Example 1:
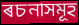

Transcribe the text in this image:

ৰচনাসমূহ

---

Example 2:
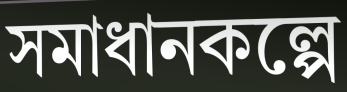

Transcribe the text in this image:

সমাধানকল্পে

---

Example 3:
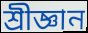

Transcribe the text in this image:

শ্ৰীজ্ঞান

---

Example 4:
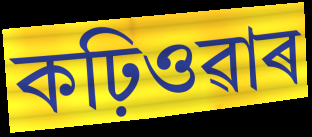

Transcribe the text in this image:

কঢ়িওৱাৰ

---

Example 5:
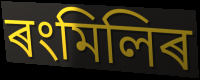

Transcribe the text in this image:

ৰংমিলিৰ